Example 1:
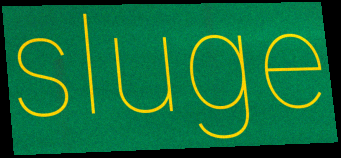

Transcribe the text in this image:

sluge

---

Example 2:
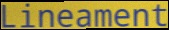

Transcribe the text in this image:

Lineament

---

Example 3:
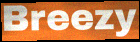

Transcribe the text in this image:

Breezy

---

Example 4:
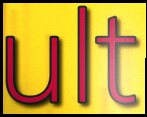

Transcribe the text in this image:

ult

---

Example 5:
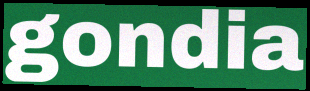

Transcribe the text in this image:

gondia